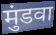
मुंडवा